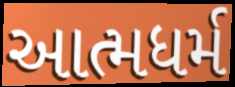
આત્મધર્મ